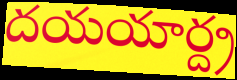
దయయార్ద్ర